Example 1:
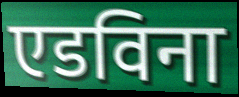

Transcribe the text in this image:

एडविना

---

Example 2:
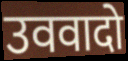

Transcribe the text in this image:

उववादो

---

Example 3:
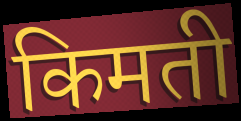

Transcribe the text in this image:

किमती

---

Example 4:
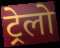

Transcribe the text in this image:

ट्रेलो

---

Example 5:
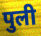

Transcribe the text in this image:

पुली